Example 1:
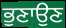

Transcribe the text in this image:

ਭੁਣਾਉਣ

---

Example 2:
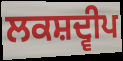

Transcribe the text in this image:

ਲਕਸ਼ਦ੍ਵੀਪ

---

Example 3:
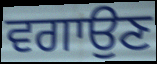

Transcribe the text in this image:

ਵਗਾਉਣ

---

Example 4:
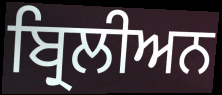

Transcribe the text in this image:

ਬ੍ਰਿਲੀਅਨ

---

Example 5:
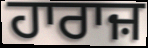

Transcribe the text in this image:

ਹਾਰਾਜ਼